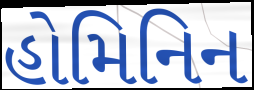
હોમિનિન